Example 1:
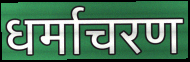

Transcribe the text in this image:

धर्माचरण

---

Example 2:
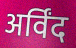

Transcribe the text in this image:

अर्विंद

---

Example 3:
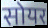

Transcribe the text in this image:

सोयर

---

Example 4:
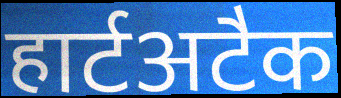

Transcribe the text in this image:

हार्टअटैक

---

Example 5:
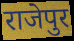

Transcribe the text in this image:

राजेपुर